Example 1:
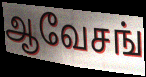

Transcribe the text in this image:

ஆவேசங்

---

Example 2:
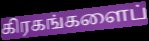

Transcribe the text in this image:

கிரகங்களைப்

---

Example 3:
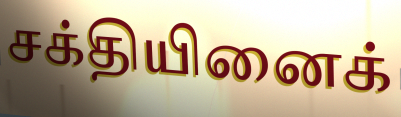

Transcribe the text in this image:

சக்தியினைக்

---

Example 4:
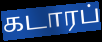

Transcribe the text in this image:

கடாரப்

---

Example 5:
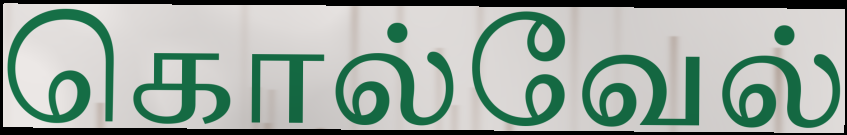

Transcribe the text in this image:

கொல்வேல்